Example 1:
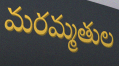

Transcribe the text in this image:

మరమ్మతుల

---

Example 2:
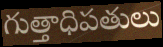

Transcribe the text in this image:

గుత్తాధిపతులు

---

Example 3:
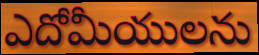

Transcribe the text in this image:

ఎదోమీయులను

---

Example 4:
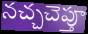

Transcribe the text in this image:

నచ్చచెప్తూ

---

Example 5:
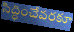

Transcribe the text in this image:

సిద్ధించేవరకూ